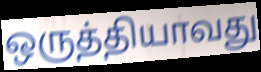
ஒருத்தியாவது